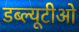
डब्ल्यूटीओ